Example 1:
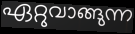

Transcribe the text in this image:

ഏറ്റുവാങ്ങുന്ന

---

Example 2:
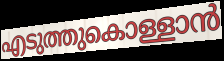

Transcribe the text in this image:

എടുത്തുകൊള്ളാൻ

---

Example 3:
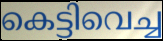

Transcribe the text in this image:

കെട്ടിവെച്ച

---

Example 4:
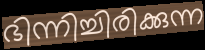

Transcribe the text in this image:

ഭിന്നിച്ചിരിക്കുന്ന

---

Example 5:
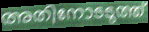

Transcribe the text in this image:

അതിനോടടുത്ത്